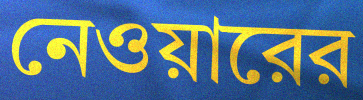
নেওয়ারের